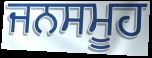
ਜਨਸਮੂਹ